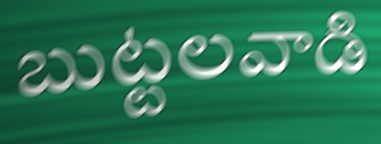
బుట్టలవాడి